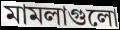
মামলাগুলো